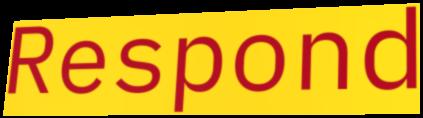
Respond